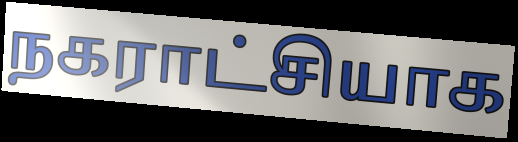
நகராட்சியாக